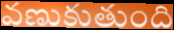
వణుకుతుంది